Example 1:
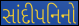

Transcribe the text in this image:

સાંદીપનિનો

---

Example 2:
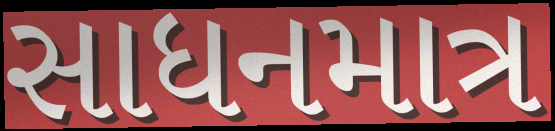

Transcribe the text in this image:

સાધનમાત્ર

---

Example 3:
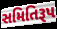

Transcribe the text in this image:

સમિતિરૂપ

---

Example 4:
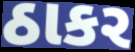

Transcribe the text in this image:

ઠાકર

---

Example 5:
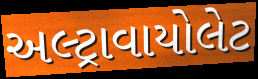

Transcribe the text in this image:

અલ્ટ્રાવાયોલેટ